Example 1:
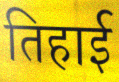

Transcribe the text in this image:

तिहाई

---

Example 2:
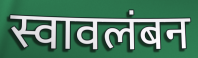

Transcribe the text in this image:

स्वावलंबन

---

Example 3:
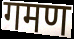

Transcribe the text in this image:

गमण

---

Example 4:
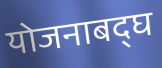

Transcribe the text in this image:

योजनाबद्घ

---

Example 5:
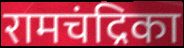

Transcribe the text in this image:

रामचंद्रिका